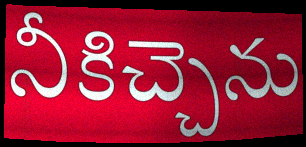
నీకిచ్చెను